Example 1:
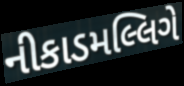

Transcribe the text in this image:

નીકાડમલ્લિગે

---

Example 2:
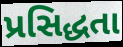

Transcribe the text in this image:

પ્રસિદ્ધતા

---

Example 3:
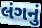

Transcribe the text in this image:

લંગનું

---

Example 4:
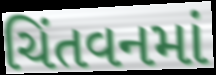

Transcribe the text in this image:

ચિંતવનમાં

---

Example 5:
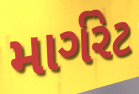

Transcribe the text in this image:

માર્ગરેટ